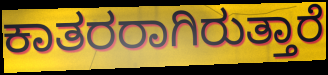
ಕಾತರರಾಗಿರುತ್ತಾರೆ